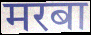
मरबा